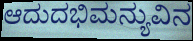
ಆದುದಭಿಮನ್ಯುವಿನ